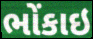
ભોંકાઇ